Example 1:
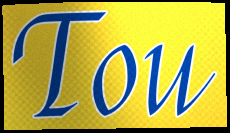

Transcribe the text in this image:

Tou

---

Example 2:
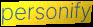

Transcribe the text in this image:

personify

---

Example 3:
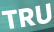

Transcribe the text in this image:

TRU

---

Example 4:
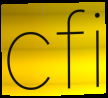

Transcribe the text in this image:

cfi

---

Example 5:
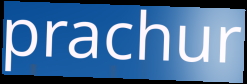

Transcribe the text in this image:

prachur